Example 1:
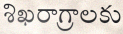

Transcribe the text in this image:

శిఖరాగ్రాలకు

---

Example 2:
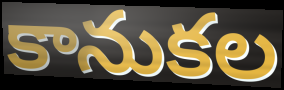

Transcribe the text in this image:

కానుకల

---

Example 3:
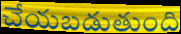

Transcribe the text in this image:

చేయబడుతుంది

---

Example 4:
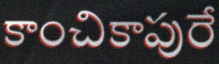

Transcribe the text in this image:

కాంచికాపురే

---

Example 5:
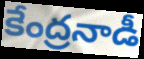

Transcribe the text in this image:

కేంద్రనాడీ